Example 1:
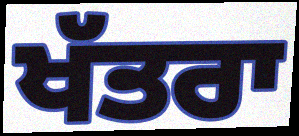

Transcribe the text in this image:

ਖੱਤਰਾ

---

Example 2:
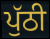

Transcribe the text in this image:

ਪੁੱਠੀ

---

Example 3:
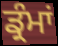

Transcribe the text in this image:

ਡ੍ਰੰਮਾਂ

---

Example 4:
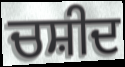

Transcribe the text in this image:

ਚਸ਼ੀਦ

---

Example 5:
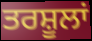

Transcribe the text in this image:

ਤਰਸ਼ੂਲਾਂ